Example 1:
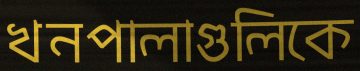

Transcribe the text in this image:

খনপালাগুলিকে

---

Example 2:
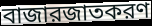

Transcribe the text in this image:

বাজারজাতকরণ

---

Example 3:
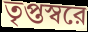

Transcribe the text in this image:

তৃপ্তস্বরে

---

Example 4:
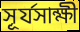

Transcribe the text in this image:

সূর্যসাক্ষী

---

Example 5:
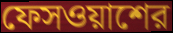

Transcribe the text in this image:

ফেসওয়াশের